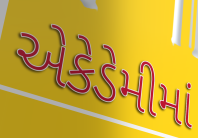
એકેડેમીમાં